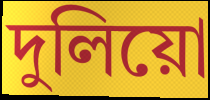
দুলিয়ো